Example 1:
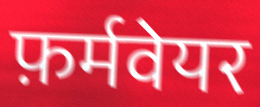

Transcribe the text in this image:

फ़र्मवेयर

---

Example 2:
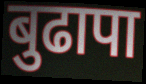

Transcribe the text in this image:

बुढापा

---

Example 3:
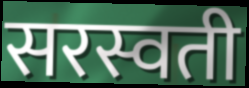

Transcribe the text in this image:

सरस्‍वती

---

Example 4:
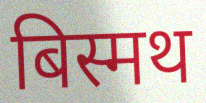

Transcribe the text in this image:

बिस्मथ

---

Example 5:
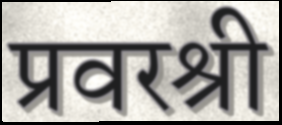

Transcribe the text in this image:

प्रवरश्री